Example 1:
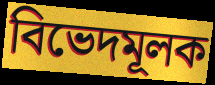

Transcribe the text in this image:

বিভেদমূলক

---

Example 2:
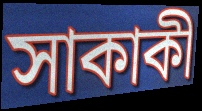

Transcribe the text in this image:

সাকাকী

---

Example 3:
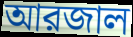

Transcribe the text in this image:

আরজাল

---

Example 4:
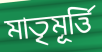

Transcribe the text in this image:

মাতৃমূর্ত্তি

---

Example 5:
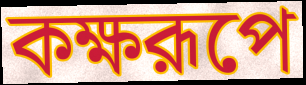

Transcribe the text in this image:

কক্ষরূপে